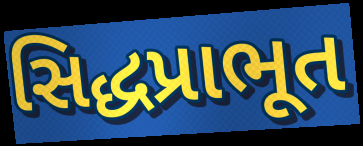
સિદ્ધપ્રાભૂત